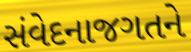
સંવેદનાજગતને